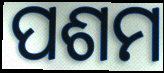
ପଶମ